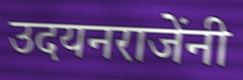
उदयनराजेंनी